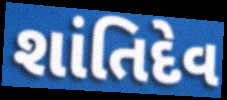
શાંતિદેવ